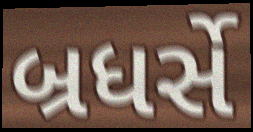
બ્રધર્સે